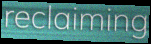
reclaiming